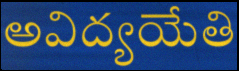
అవిద్యయేతి